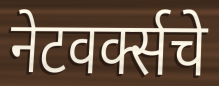
नेटवर्क्सचे